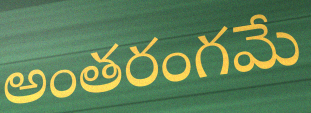
అంతరంగమే